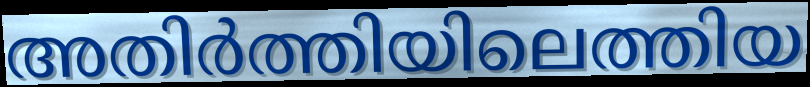
അതിർത്തിയിലെത്തിയ